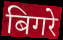
बिगरे